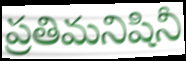
ప్రతిమనిషినీ